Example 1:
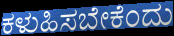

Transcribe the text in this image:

ಕಳುಹಿಸಬೇಕೆಂದು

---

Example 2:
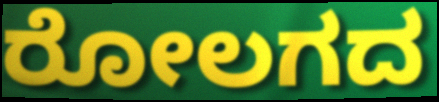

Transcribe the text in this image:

ರೋಲಗದ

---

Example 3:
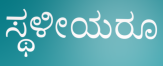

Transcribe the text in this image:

ಸ್ಥಳೀಯರೂ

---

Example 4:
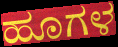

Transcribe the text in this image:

ಹೂಗಳ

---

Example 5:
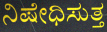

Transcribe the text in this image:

ನಿಷೇಧಿಸುತ್ತ